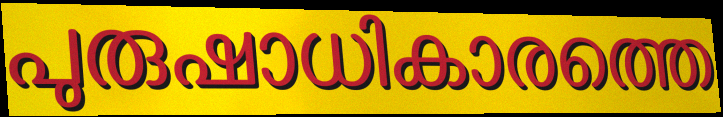
പുരുഷാധികാരത്തെ